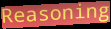
Reasoning